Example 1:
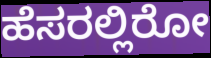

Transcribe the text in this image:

ಹೆಸರಲ್ಲಿರೋ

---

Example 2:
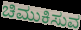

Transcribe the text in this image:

ಚಿಮುಕಿಸುವ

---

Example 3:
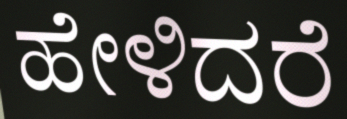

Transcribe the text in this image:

ಹೇಳಿದರೆ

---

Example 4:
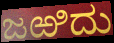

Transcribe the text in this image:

ಜಱಿದು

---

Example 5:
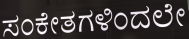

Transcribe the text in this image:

ಸಂಕೇತಗಳಿಂದಲೇ